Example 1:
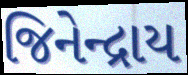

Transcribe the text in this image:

જિનેન્દ્રાય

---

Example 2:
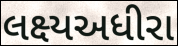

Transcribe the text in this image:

લક્ષ્યઅધીરા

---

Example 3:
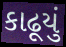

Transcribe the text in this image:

કાઢૂયું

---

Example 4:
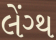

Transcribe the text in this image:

લેંગ્થ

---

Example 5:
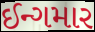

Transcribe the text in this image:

ઈન્ગમાર